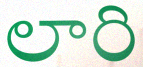
లారి